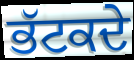
ਭੱਟਕਦੇ